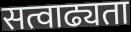
सत्वाढ्यता